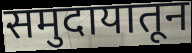
समुदायातून